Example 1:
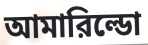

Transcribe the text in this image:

আমারিল্ডো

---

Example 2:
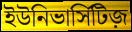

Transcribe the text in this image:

ইউনিভার্সিটিজ়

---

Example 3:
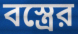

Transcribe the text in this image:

বস্ত্রের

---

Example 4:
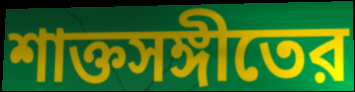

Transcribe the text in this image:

শাক্তসঙ্গীতের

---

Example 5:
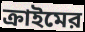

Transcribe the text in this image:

ক্রাইমের